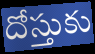
దోస్తుకు